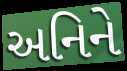
અનિને